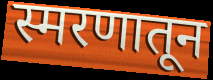
स्मरणातून